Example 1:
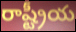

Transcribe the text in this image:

రాష్ట్రీయ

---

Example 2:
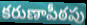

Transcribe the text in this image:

కరుణాపీఠపు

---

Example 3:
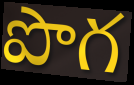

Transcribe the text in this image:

పొగ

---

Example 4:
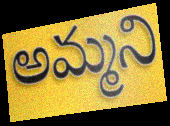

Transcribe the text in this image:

అమ్మని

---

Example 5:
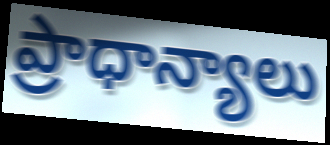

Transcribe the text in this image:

ప్రాధాన్యాలు